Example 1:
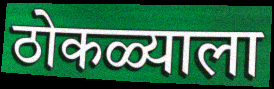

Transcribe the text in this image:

ठोकळ्याला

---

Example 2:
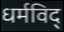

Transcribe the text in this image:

धर्मविद्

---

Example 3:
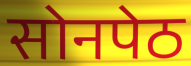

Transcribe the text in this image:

सोनपेठ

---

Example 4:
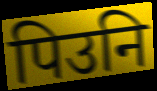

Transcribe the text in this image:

पिउनि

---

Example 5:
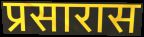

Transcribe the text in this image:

प्रसारास